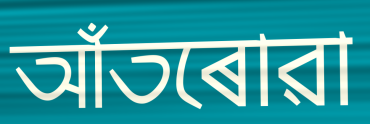
আঁতৰোৱা